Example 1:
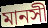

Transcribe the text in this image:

মানসী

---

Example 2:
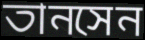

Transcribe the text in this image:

তানসেন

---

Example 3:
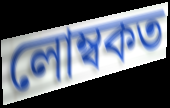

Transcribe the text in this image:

লোম্বকত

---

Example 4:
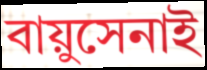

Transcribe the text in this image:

বায়ুসেনাই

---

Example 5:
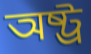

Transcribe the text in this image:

অষ্ট্ৰ